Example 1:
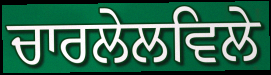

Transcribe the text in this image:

ਚਾਰਲੇਲਵਿਲੇ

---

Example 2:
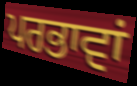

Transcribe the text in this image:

ਪਰਭਾਵਾਂ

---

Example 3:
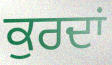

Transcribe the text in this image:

ਕੁਰਦਾਂ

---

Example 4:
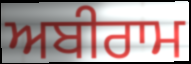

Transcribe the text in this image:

ਅਬੀਰਾਮ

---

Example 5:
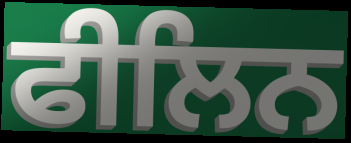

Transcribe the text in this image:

ਫੀਲਿਨ